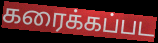
கரைக்கப்பட